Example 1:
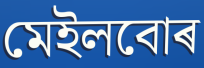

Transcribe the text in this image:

মেইলবোৰ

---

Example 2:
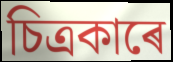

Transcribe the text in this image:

চিত্ৰকাৰে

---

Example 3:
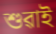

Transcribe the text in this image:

শুৱাই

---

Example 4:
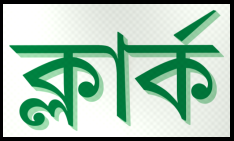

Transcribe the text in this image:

ক্লাৰ্ক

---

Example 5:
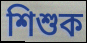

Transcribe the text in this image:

শিশুক